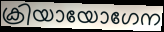
ക്രിയായോഗേന